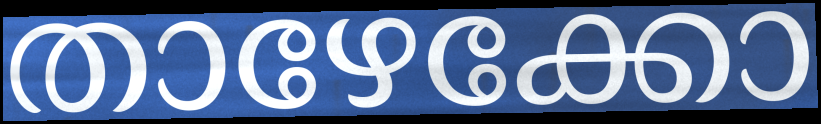
താഴേക്കോ